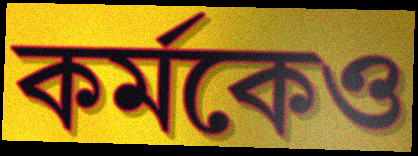
কর্মকেও